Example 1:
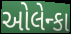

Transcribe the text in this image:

ઓલેન્કા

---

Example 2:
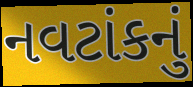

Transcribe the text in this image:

નવટાંકનું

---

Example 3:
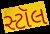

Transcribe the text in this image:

સ્ટૉલ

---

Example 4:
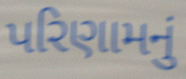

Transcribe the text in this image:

પરિણામનું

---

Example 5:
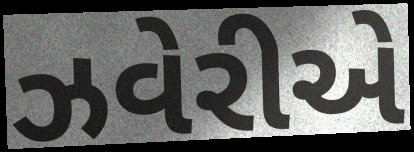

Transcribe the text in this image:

ઝવેરીએ